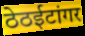
ठेठईटांगर